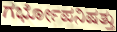
ಗರ್ಭೋಪನಿಷತ್ತು